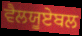
ਵੈਲਯੂਏਬਲ